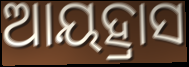
ଆୟହ୍ରାସ